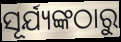
ସୂର୍ଯ୍ୟଙ୍କଠାରୁ